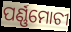
ପର୍ଣ୍ଣମୋଚୀ